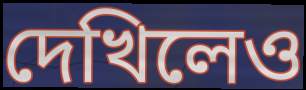
দেখিলেও